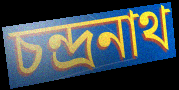
চন্দ্রনাথ